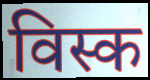
विस्क